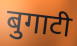
बुगाटी